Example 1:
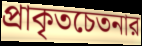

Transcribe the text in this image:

প্রাকৃতচেতনার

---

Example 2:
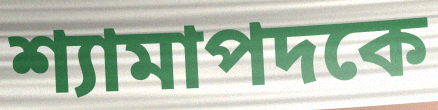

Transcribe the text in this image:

শ্যামাপদকে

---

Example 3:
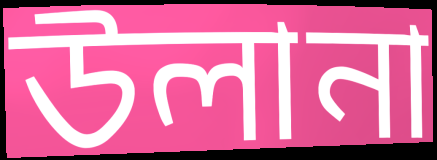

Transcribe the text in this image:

উলানা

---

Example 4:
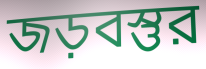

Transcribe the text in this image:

জড়বস্তুর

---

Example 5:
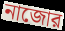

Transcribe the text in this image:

নাজোর